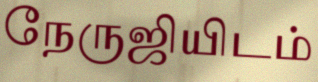
நேருஜியிடம்